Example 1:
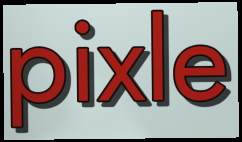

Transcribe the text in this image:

pixle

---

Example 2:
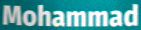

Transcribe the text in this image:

Mohammad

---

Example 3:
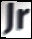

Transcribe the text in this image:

Jr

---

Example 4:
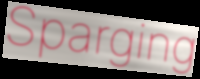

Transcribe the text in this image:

Sparging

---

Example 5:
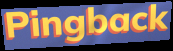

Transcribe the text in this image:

Pingback